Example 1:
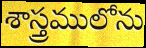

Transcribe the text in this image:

శాస్త్రములోను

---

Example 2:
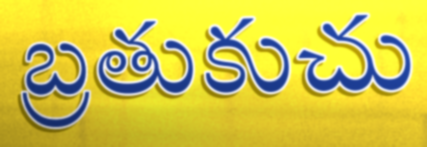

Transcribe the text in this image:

బ్రతుకుచు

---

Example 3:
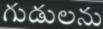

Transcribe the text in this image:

గుడులను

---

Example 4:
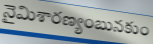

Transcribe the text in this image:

నైమిశారణ్యంబునకుం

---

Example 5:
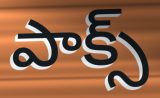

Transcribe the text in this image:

పాక్స్